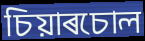
চিয়াৰচোল